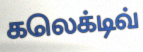
கலெக்டிவ்